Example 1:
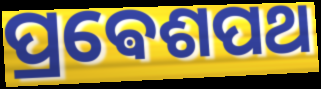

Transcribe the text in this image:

ପ୍ରଵେଶପଥ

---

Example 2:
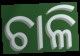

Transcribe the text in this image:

ଚାଳି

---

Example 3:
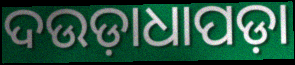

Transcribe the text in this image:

ଦଉଡ଼ାଧାପଡ଼ା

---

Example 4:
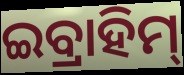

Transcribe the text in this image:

ଇବ୍ରାହିମ୍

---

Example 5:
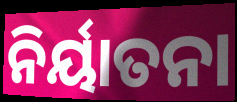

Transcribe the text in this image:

ନିର୍ୟାତନା